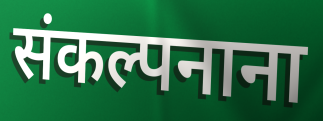
संकल्पनाना